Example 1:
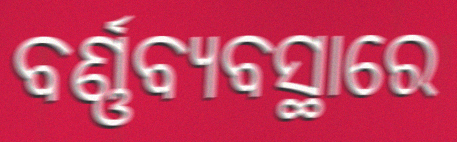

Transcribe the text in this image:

ବର୍ଣ୍ଣବ୍ୟବସ୍ଥାରେ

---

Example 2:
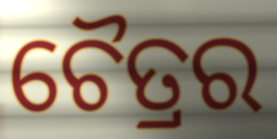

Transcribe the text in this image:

ଚୈତ୍ରର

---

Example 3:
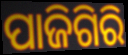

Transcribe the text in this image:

ପାଜିଗିରି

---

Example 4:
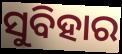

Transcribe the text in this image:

ସୁବିହାର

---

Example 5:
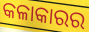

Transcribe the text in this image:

କଳାକାରର